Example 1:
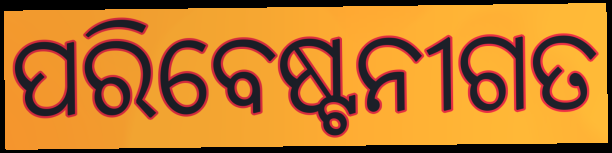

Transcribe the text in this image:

ପରିବେଷ୍ଟନୀଗତ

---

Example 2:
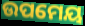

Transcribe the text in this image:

ଉପମେୟ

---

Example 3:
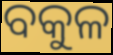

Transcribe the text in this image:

ବକୁଳ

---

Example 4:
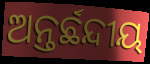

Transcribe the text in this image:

ଅନ୍ତର୍ଛନ୍ଦୀୟ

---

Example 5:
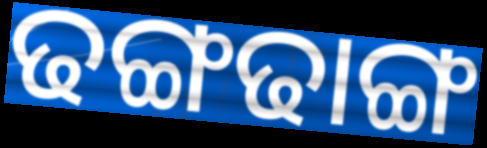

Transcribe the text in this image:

ଢଙ୍ଗଢାଙ୍ଗ